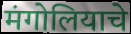
मंगोलियाचे